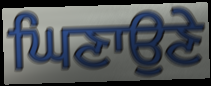
ਘਿਣਾਉਣੇ